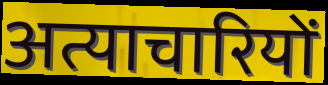
अत्याचारियों